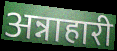
अन्नाहारी